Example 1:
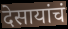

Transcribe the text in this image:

देसायांचं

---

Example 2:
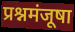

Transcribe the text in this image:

प्रश्नमंजूषा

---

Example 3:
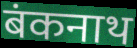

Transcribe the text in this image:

बंकनाथ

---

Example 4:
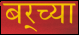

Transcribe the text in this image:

बर्च्या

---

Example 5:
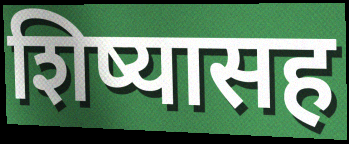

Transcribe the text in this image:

शिष्यासह